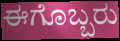
ಈಗೊಬ್ಬರು